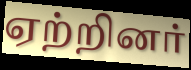
ஏற்றினர்